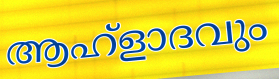
ആഹ്ളാദവും